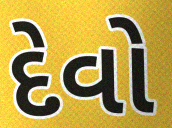
દેવો